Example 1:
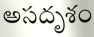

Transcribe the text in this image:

అసదృశం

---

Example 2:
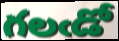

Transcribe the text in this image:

గలఁడో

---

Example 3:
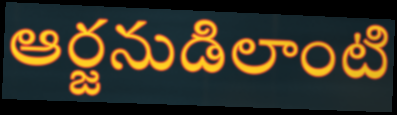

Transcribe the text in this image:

ఆర్జనుడిలాంటి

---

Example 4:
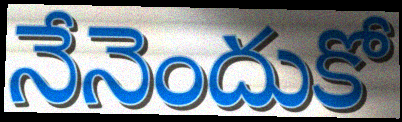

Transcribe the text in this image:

నేనెందుకో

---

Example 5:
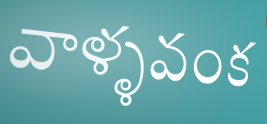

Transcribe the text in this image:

వాళ్ళవంక